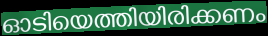
ഓടിയെത്തിയിരിക്കണം